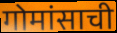
गोमांसाची